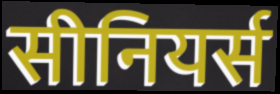
सीनियर्स